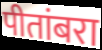
पीतांबरा